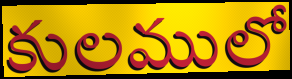
కులములో